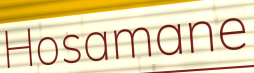
Hosamane